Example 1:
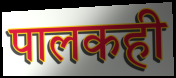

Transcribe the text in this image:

पालकही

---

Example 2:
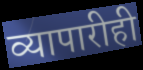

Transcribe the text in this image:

व्यापारीही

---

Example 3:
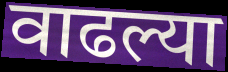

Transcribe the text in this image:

वाढल्या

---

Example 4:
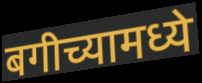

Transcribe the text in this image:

बगीच्यामध्ये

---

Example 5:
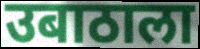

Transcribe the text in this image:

उबाठाला